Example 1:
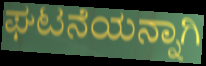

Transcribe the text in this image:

ಘಟನೆಯನ್ನಾಗಿ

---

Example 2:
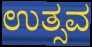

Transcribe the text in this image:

ಉತ್ಸವ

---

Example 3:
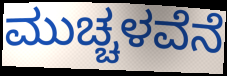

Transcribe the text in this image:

ಮುಚ್ಚಳವೆನೆ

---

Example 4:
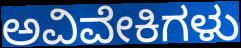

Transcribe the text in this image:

ಅವಿವೇಕಿಗಳು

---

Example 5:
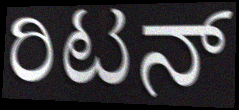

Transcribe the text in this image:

ರಿಟನ್